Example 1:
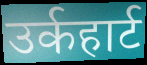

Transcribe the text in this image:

उर्कहार्ट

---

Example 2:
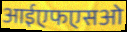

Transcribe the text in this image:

आईएफएसओ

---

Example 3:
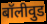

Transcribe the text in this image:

बॉलीवुड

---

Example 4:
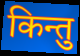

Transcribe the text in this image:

किन्तु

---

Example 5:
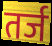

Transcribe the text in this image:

तर्ज